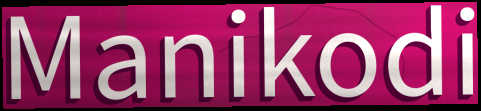
Manikodi